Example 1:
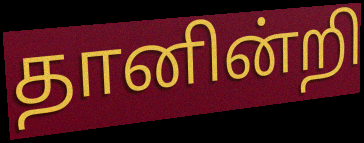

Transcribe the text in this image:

தானின்றி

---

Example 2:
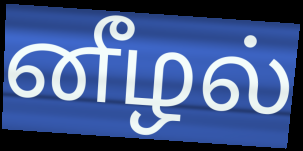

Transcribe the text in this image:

னீழல்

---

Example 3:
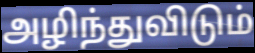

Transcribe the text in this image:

அழிந்துவிடும்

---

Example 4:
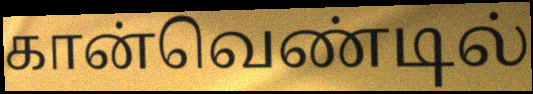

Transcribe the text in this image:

கான்வெண்டில்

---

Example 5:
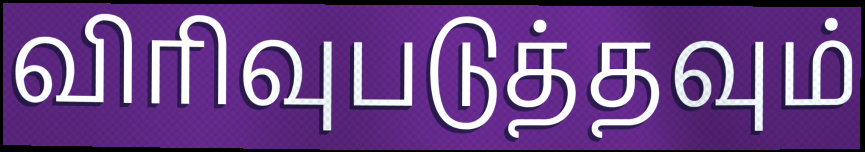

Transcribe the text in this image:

விரிவுபடுத்தவும்